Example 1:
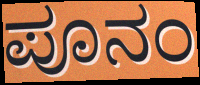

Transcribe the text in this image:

ಪೂನಂ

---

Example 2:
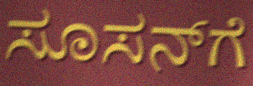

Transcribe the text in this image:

ಸೂಸನ್‌ಗೆ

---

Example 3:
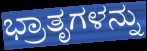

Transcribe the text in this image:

ಭ್ರಾತೃಗಳನ್ನು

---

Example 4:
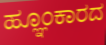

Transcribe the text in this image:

ಹ್ಞೂಂಕಾರದ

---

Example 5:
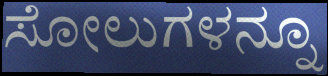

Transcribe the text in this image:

ಸೋಲುಗಳನ್ನೂ